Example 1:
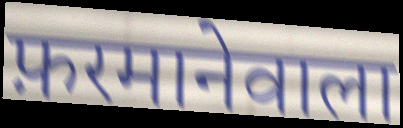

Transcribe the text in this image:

फ़रमानेवाला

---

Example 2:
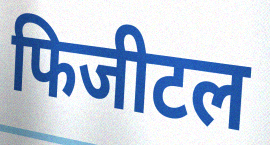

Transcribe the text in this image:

फिजीटल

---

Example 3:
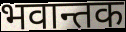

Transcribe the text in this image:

भवान्तक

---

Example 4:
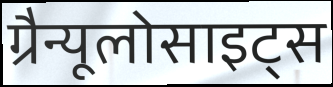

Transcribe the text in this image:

ग्रैन्यूलोसाइट्स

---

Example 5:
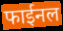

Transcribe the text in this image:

फाईनल